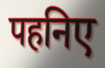
पहनिए